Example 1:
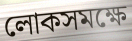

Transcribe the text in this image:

লোকসমক্ষে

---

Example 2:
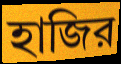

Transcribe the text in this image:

হাজির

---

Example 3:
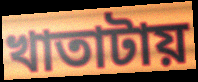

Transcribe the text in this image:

খাতাটায়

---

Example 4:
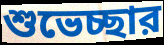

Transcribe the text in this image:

শুভেচ্ছার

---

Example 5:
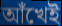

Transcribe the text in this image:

আঁখেই